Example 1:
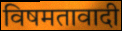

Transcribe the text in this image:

विषमतावादी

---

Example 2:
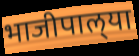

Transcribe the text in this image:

भाजीपाल्या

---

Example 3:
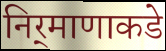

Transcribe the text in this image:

निर्माणाकडे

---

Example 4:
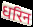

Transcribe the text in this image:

धरिन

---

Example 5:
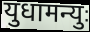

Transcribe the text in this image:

युधामन्युः